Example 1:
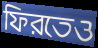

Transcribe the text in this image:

ফিরতেও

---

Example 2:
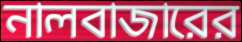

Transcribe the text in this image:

নালবাজারের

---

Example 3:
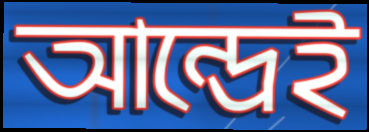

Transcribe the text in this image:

আন্দ্রেই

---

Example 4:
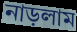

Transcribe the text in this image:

নাড়লাম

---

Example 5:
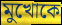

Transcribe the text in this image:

মুখোকে